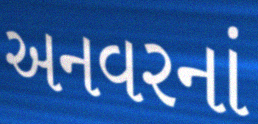
અનવરનાં